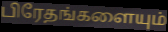
பிரேதங்களையும்